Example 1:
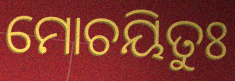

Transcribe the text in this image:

ମୋଚୟିତୁଃ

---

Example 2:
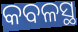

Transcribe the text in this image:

କବଳସ୍ଥ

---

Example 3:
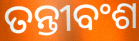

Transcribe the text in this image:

ତନ୍ତୀବଂଶ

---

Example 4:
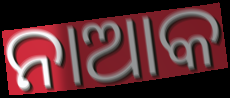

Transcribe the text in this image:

ନାଆକ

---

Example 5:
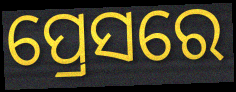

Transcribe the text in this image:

ପ୍ରେସରେ